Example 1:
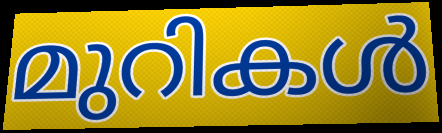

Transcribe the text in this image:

മുറികൾ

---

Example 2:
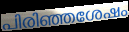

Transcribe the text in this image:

പിരിഞ്ഞശേഷം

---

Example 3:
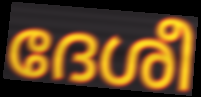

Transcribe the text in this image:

ദേശീ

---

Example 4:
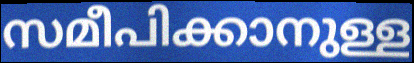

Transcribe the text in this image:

സമീപിക്കാനുള്ള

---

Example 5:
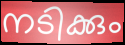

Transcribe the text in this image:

നടിക്കും